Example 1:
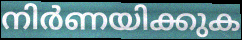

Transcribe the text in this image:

നിർണയിക്കുക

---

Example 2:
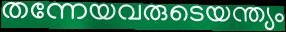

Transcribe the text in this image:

തന്നേയവരുടെയന്ത്യം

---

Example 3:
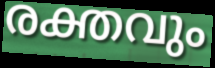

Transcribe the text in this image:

രക്തവും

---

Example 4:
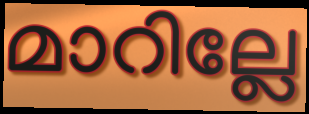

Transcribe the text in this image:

മാറില്ലേ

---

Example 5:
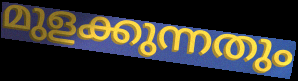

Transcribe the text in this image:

മുളക്കുന്നതും